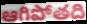
ఆగిపోతది